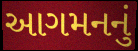
આગમનનું